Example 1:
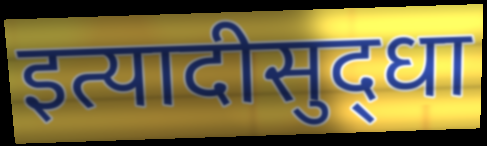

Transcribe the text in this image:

इत्यादीसुद्धा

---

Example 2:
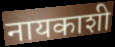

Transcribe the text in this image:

नायकाशी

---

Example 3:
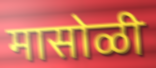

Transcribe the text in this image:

मासोळी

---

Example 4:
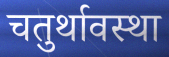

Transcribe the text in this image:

चतुर्थावस्था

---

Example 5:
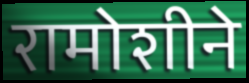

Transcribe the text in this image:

रामोशीने